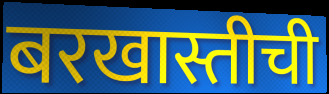
बरखास्तीची